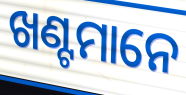
ଖଣ୍ଟମାନେ